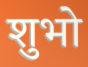
शुभो